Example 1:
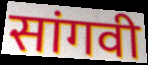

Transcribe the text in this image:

सांगवी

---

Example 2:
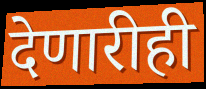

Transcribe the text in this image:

देणारीही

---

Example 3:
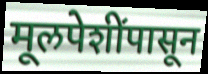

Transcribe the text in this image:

मूलपेशींपासून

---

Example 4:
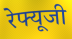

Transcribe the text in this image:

रेफ्यूजी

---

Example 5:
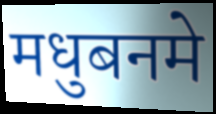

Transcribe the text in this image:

मधुबनमे